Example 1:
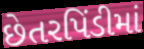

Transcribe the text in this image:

છેતરપિંડીમાં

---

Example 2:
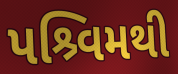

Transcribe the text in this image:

પશ્ર્વિમથી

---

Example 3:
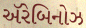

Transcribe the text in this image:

ઍરેબિનોઝ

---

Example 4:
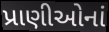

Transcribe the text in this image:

પ્રાણીઓનાં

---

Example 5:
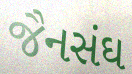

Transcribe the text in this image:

જૈનસંઘ